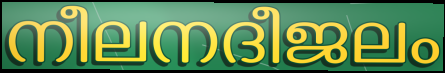
നീലനദീജലം